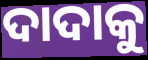
ଦାଦାକୁ